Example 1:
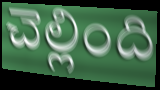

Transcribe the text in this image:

చెల్లింది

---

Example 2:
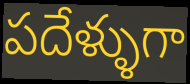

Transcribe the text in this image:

పదేళ్ళుగా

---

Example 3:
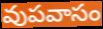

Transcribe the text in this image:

వుపవాసం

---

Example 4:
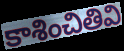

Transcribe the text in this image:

కాశించితివి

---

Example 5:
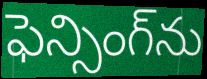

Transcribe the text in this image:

ఫెన్సింగ్‌ను